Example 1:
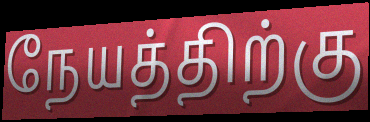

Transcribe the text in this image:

நேயத்திற்கு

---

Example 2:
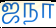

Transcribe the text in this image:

ஜநா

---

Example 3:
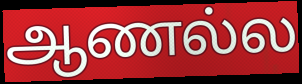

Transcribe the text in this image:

ஆணல்ல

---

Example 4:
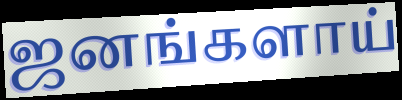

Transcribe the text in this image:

ஜனங்களாய்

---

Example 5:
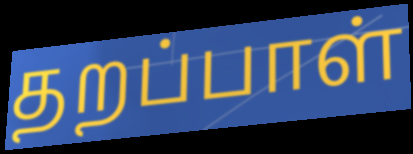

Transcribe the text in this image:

தறப்பாள்